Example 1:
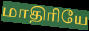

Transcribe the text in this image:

மாதிரியே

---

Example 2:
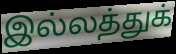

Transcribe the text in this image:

இல்லத்துக்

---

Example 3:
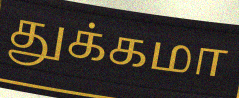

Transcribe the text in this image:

துக்கமா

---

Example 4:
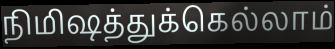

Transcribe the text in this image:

நிமிஷத்துக்கெல்லாம்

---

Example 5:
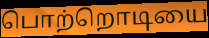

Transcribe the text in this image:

பொற்றொடியை